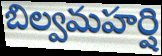
బిల్వమహర్షి